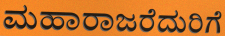
ಮಹಾರಾಜರೆದುರಿಗೆ